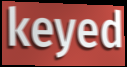
keyed